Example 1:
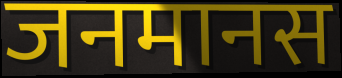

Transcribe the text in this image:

जनमानस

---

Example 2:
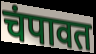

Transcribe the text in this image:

चंपावत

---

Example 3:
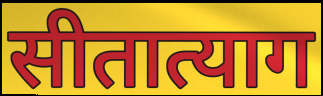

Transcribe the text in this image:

सीतात्याग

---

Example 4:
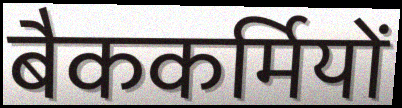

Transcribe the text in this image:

बैककर्मियों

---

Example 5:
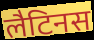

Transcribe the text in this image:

लैटिनस